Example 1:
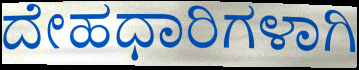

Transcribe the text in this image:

ದೇಹಧಾರಿಗಳಾಗಿ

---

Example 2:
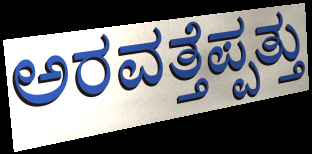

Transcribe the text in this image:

ಅರವತ್ತೆಪ್ಪತ್ತು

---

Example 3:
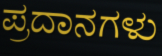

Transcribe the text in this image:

ಪ್ರದಾನಗಳು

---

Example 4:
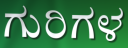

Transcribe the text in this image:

ಗುರಿಗಳ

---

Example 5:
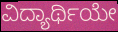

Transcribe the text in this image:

ವಿದ್ಯಾರ್ಥಿಯೇ